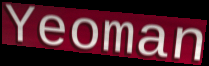
Yeoman